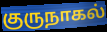
குருநாகல்